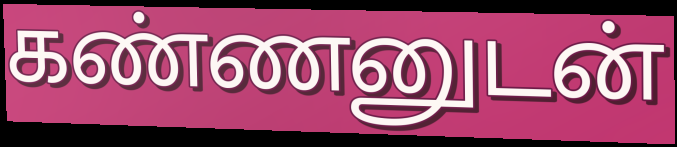
கண்ணனுடன்